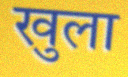
खुला